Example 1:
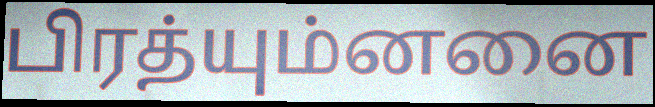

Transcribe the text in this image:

பிரத்யும்னனை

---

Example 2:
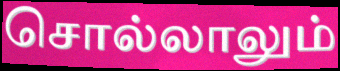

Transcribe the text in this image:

சொல்லாலும்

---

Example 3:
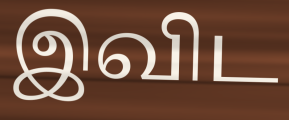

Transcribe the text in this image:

இவிட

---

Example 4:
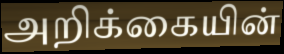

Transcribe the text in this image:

அறிக்கையின்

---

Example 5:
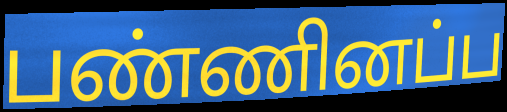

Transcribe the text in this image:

பண்ணினப்ப